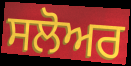
ਸਲੋਅਰ